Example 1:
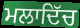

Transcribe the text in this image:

ਮਲਾਦਿੱਚ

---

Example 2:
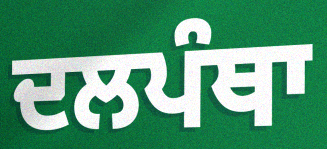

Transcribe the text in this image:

ਦਲਪੰਥਾ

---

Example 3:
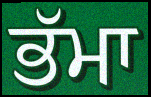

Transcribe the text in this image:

ਭੱਮਾ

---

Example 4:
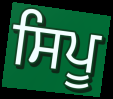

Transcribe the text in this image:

ਸਿਪੂ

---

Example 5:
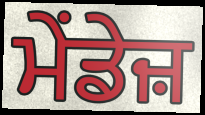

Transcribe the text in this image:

ਮੇਂਡੇਜ਼